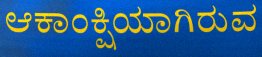
ಆಕಾಂಕ್ಷಿಯಾಗಿರುವ